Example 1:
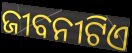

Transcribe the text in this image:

ଜୀବନୀଟିଏ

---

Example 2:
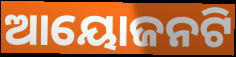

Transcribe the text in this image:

ଆୟୋଜନଟି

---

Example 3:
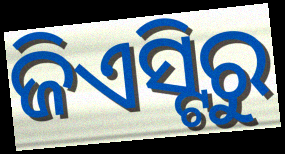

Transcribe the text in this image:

ଜିଏସ୍ଟିରୁ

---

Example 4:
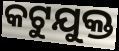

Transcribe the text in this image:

କଟୁଯୁକ୍ତ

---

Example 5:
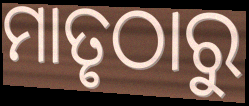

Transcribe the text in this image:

ମାତୃଠାରୁ